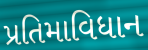
પ્રતિમાવિધાન